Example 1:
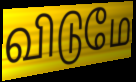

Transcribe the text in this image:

விடுமே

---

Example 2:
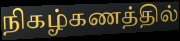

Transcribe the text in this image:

நிகழ்கணத்தில்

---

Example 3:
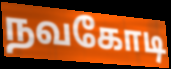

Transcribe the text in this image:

நவகோடி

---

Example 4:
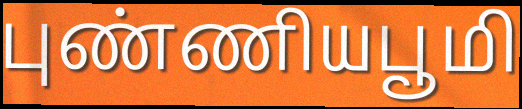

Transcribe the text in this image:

புண்ணியபூமி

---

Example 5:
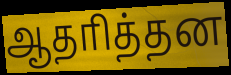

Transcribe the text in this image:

ஆதரித்தன